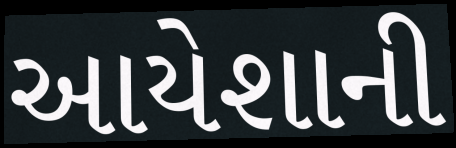
આયેશાની